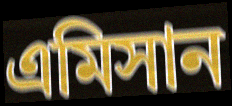
এমিসান